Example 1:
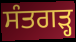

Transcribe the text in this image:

ਸੰਤਗੜ੍ਹ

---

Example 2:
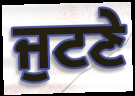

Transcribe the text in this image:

ਜੁਟਣੇ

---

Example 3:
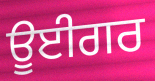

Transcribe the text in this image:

ਊਈਗਰ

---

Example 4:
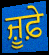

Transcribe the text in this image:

ਜ਼ੂਫ਼ੇ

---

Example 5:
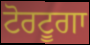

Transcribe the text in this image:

ਟੋਰਟੂਗਾ